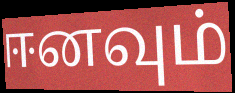
ஈனவும்